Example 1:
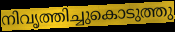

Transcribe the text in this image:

നിവൃത്തിച്ചുകൊടുത്തു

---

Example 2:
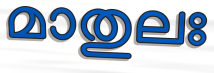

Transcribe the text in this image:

മാതുലഃ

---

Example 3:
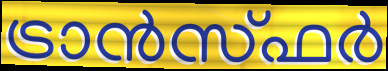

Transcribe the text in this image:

ട്രാൻസ്ഫർ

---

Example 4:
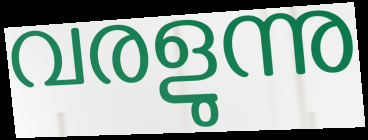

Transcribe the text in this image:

വരളുന്നു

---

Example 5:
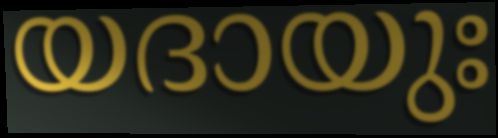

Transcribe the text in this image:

യദായുഃ